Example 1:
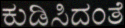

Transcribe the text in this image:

ಕುಡಿಸಿದಂತೆ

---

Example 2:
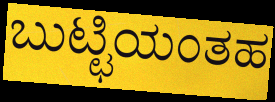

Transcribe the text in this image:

ಬುಟ್ಟಿಯಂತಹ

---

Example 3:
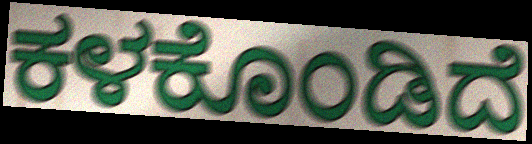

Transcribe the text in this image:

ಕಳಕೊಂಡಿದೆ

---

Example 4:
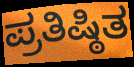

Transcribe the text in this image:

ಪ್ರತಿಷ್ಠಿತ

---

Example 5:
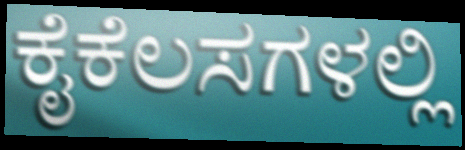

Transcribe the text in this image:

ಕೈಕೆಲಸಗಳಲ್ಲಿ